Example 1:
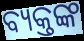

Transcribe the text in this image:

ବ୍ୟକ୍ତଙ୍କ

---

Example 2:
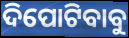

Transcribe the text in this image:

ଦିପୋଟିବାବୁ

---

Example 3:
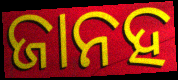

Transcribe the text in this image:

ଜାନହ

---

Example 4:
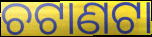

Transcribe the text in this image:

ଚଟାଣଟା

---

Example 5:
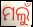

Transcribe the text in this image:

ମଲୁଁ